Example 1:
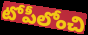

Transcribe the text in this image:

టోపీలోంచి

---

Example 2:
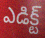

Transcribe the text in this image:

ఎడిక్ట్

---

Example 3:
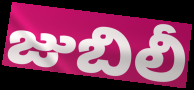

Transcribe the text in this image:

జుబిలీ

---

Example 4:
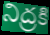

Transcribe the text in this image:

నిద్రకి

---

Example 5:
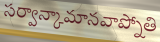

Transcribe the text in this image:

సర్వాన్కామానవాప్నోతి